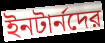
ইনটার্নদের